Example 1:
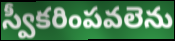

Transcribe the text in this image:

స్వీకరింపవలెను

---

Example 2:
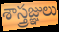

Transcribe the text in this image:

శాస్త్రజ్ఞులు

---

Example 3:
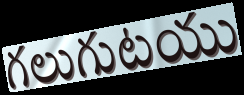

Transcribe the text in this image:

గలుగుటయు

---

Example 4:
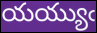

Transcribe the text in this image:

యయ్యుఁ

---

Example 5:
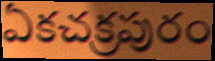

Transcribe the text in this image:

ఏకచక్రపురం